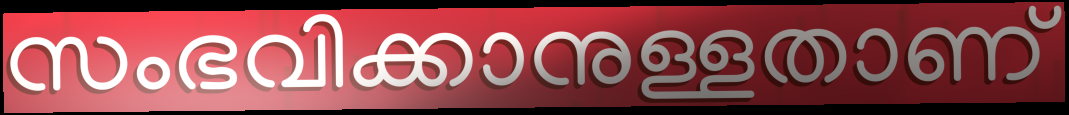
സംഭവിക്കാനുള്ളതാണ്